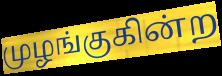
முழங்குகின்ற